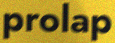
prolap